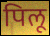
पिलू